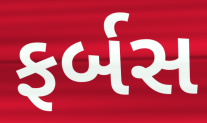
ફર્બસ